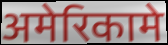
अमेरिकामे